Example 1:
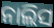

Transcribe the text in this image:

ନାଲିସ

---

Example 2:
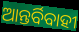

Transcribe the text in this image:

ଆନ୍ତର୍ବିବାହୀ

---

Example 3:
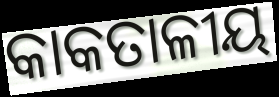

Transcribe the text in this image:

କାକତାଳୀୟ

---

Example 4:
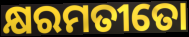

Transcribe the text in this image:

କ୍ଷରମତୀତୋ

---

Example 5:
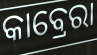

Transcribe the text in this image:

କାବ୍ରେରା